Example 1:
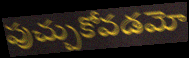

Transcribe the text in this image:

పుచ్చుకోవడమో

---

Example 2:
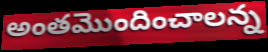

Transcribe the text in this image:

అంతమొందించాలన్న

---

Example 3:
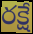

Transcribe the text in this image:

రక్షే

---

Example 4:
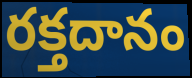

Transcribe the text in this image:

రక్తదానం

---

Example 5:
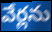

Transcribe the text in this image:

వేర్లను